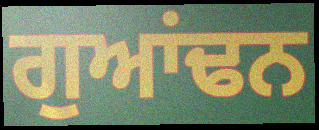
ਗੁਆਂਢਨ